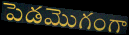
పెడమొగంగా